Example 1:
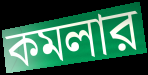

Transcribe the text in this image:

কমলার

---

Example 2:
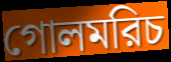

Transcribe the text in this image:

গোলমরিচ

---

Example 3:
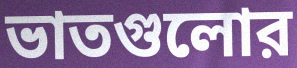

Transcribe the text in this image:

ভাতগুলোর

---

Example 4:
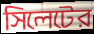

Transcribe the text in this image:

সিলেটের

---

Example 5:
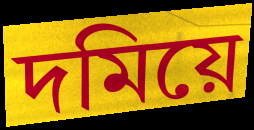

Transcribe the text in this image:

দমিয়ে